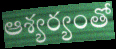
ఆశ్యర్యంతో